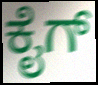
ಕೈಗ್